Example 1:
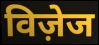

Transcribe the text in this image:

विज़ेज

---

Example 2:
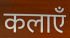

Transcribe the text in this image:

कलाएँ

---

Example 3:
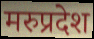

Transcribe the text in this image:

मरुप्रदेश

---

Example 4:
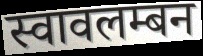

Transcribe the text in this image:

स्वावलम्बन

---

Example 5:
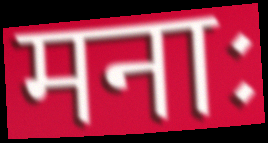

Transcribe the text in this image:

मनाः